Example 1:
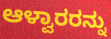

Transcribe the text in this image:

ಆಳ್ವಾರರನ್ನು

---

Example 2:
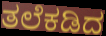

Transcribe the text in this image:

ತಲೆಕಡಿದ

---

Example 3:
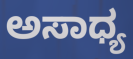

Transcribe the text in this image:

ಅಸಾಧ್ಯ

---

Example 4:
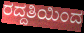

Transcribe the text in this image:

ರದ್ದತಿಯಿಂದ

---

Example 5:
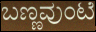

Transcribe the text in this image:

ಬಣ್ಣವುಂಟೆ